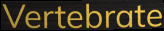
Vertebrate